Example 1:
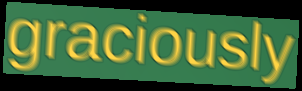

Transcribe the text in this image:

graciously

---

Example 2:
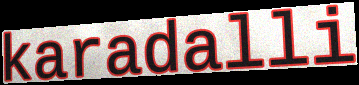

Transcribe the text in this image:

karadalli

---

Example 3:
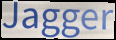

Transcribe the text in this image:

Jagger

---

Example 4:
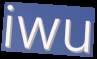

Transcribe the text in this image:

iwu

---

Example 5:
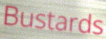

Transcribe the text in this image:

Bustards